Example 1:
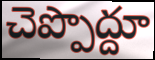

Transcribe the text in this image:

చెప్పొద్దూ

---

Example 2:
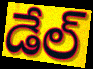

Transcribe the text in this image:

డేల్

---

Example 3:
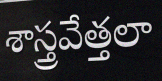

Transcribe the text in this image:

శాస్త్రవేత్తలా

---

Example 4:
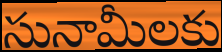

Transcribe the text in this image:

సునామీలకు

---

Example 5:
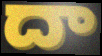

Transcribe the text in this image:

దా